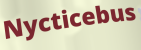
Nycticebus